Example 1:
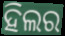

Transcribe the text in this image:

ହିଲର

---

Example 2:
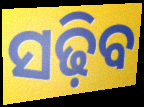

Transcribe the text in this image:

ସଢ଼ିବ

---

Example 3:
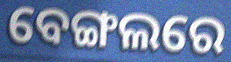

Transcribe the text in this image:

ବେଙ୍ଗଲରେ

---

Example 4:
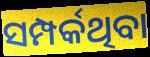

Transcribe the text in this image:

ସମ୍ପର୍କଥିବା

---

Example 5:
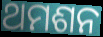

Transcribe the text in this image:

ଥମଶନ